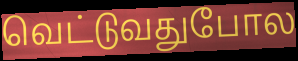
வெட்டுவதுபோல